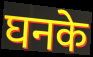
घनके